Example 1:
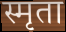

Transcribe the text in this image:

स्मृता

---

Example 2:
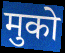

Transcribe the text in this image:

मुको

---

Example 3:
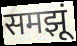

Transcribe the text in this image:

समझूं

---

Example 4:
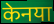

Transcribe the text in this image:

केनया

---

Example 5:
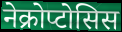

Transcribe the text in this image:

नेक्रोप्टोसिस